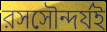
রসসৌন্দর্যই